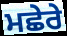
ਮਛੇਰੇ